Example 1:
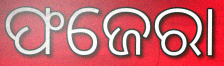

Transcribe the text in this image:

ଫଜେରା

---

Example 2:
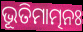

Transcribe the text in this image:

ଭୂତିମାତ୍ମନଃ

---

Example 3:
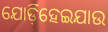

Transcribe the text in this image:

ଯୋଡ଼ିହେଇଯାଉ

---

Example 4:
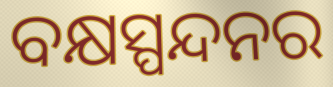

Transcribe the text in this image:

ବକ୍ଷସ୍ପନ୍ଦନର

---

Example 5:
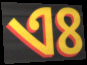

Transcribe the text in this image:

ଏଃ